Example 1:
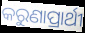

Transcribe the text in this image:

କରୁଣାପ୍ରାର୍ଥୀ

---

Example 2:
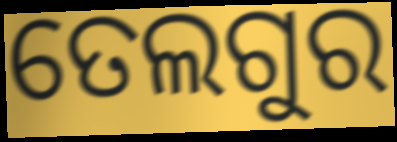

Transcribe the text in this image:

ତେଲଗୁର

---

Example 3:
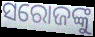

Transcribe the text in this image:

ସରୋଜଙ୍କୁ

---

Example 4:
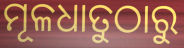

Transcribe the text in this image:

ମୂଳଧାତୁଠାରୁ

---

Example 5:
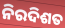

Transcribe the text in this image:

ନିରଦିଶତ